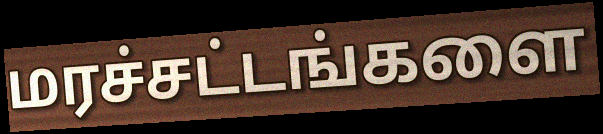
மரச்சட்டங்களை